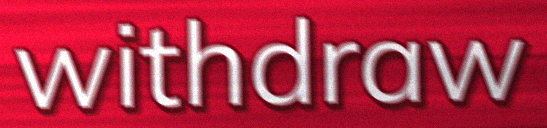
withdraw